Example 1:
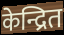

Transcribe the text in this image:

केन्द्रित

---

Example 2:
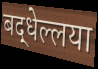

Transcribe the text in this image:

बद्धेल्लया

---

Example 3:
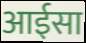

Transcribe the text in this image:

आईसा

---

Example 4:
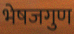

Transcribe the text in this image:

भेषजगुण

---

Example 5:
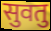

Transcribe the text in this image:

सुवतु